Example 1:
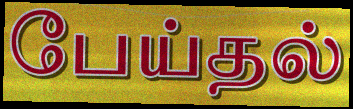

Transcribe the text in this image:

பேய்தல்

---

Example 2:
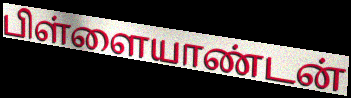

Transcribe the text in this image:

பிள்ளையாண்டன்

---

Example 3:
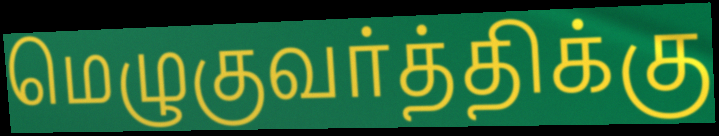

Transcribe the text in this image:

மெழுகுவர்த்திக்கு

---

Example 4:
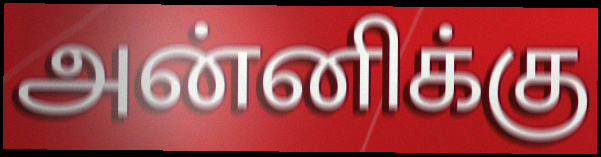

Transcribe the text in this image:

அன்னிக்கு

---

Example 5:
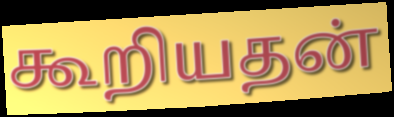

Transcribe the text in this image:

கூறியதன்